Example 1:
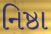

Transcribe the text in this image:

નિષ્ઠા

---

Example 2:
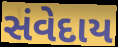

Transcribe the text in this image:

સંવેદાય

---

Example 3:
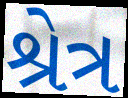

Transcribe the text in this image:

શ્રેત્ર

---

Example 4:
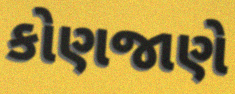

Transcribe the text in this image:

કોણજાણે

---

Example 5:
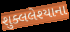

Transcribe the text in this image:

શુક્લલેશ્યાના